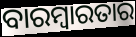
ବାରମ୍ବାରତାର